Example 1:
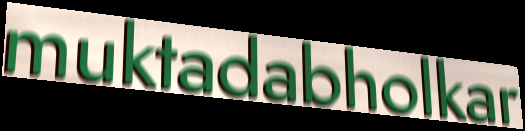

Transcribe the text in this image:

muktadabholkar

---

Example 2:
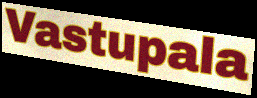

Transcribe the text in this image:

Vastupala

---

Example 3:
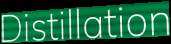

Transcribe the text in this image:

Distillation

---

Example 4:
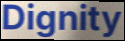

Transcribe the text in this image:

Dignity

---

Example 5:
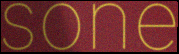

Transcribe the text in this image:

sone